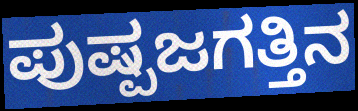
ಪುಷ್ಪಜಗತ್ತಿನ